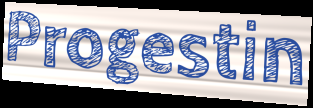
Progestin